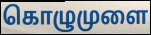
கொழுமுளை